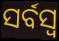
ସର୍ବସ୍ୱ